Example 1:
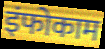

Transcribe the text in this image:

इंफोकाम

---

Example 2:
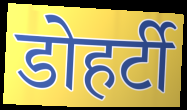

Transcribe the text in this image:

डोहर्टी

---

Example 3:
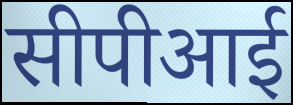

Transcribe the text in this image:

सीपीआई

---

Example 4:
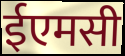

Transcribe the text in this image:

ईएमसी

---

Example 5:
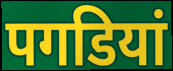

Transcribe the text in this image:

पगडियां